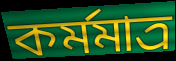
কর্মমাত্র